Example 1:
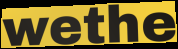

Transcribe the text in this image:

wethe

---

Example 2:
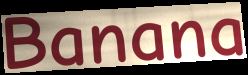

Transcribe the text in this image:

Banana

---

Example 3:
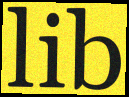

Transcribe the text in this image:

lib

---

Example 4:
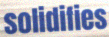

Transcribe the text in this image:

solidifies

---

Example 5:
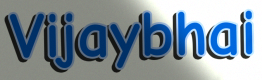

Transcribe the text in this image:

Vijaybhai